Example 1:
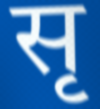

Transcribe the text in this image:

सृ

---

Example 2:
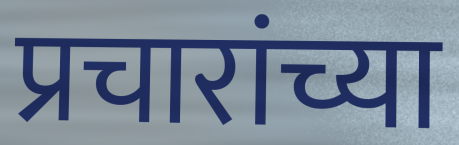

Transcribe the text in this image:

प्रचारांच्या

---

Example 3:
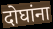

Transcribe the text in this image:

दोघांना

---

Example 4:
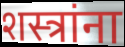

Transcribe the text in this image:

शस्त्रांना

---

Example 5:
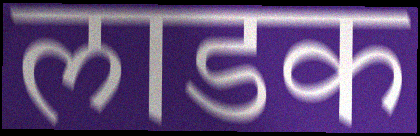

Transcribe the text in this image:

लाडक